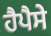
ਹੈਪੈਸੇ